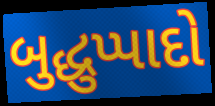
બુદ્ધુપ્પાદો